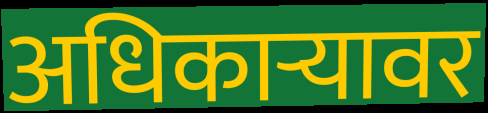
अधिकार्‍यावर